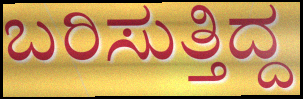
ಬರಿಸುತ್ತಿದ್ದ